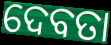
ଦେବତା